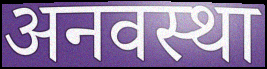
अनवस्था